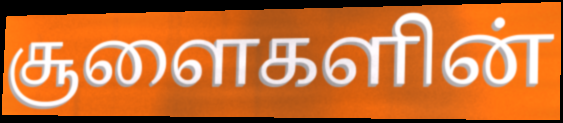
சூளைகளின்